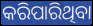
କରିପାରିଥିବା